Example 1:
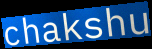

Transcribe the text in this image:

chakshu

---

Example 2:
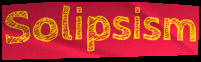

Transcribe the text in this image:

Solipsism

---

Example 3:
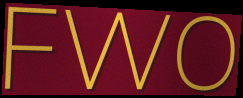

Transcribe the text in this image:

FWO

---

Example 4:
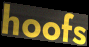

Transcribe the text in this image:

hoofs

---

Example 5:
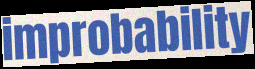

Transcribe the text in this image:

improbability